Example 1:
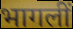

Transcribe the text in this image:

भागलीं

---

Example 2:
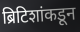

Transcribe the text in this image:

ब्रिटिशांकडून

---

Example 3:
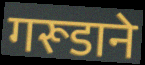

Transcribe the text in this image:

गरूडाने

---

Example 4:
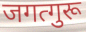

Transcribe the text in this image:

जगत्गुरू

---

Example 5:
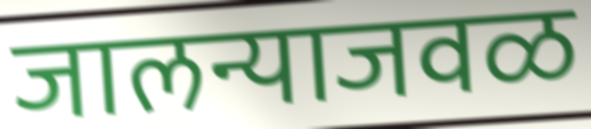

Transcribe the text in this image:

जालन्याजवळ